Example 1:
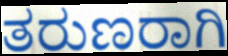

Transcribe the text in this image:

ತರುಣರಾಗಿ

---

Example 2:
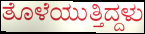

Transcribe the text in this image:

ತೊಳೆಯುತ್ತಿದ್ದಳು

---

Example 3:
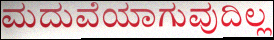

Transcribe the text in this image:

ಮದುವೆಯಾಗುವುದಿಲ್ಲ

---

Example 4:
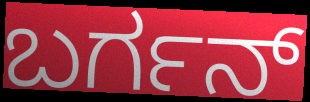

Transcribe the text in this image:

ಬರ್ಗನ್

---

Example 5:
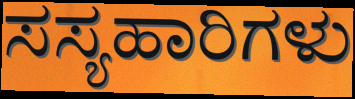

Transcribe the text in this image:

ಸಸ್ಯಹಾರಿಗಳು